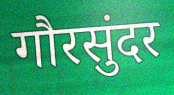
गौरसुंदर